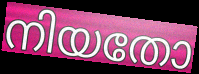
നിയതോ